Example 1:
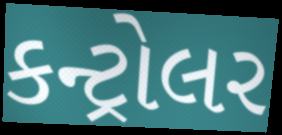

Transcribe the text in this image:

કન્ટ્રોલર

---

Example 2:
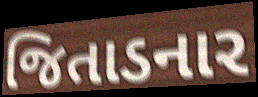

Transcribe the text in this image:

જિતાડનાર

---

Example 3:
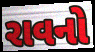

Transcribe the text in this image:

રાવનો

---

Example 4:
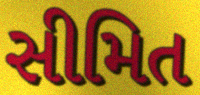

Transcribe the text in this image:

સીમિત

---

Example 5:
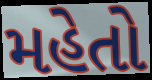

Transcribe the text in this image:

મહેતો